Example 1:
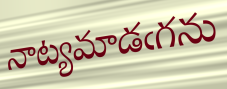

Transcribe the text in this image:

నాట్యమాడఁగను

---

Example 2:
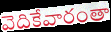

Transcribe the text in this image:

వెదికేవారంతా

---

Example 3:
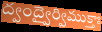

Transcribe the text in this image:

ద్వంద్వైర్విముక్తాః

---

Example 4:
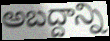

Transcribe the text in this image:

అబద్దాన్ని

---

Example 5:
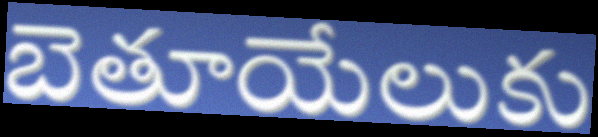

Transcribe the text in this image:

బెతూయేలుకు